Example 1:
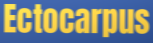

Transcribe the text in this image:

Ectocarpus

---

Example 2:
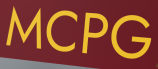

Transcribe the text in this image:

MCPG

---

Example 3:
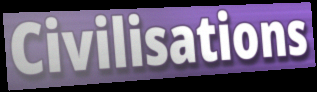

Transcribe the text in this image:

Civilisations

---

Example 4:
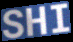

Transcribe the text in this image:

SHI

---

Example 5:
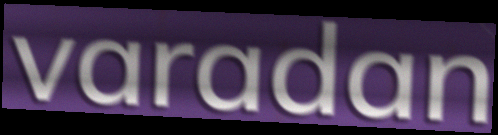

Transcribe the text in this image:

varadan